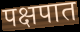
पक्षपात